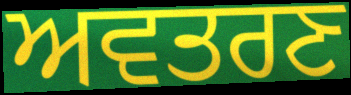
ਅਵਤਰਣ